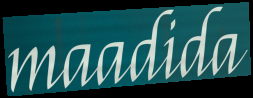
maadida